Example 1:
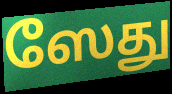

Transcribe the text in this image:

ஸேது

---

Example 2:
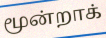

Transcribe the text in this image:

மூன்றாக்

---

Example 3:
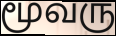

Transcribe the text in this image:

மூவரு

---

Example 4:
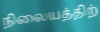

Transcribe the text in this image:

நிலையத்திற்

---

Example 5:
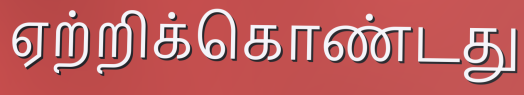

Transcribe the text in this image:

ஏற்றிக்கொண்டது